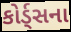
કોર્ડ્સના